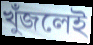
খুঁজলেই